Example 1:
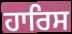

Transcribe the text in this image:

ਹਾਰਿਸ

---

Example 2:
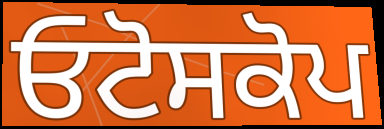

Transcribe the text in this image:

ਓਟੋਸਕੋਪ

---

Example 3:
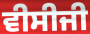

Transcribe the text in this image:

ਵੀਸੀਜੀ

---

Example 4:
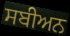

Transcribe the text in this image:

ਸਬੀਅਨ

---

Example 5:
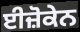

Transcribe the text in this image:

ਈਜ਼ੋਕੇਨ